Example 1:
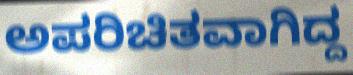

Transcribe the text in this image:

ಅಪರಿಚಿತವಾಗಿದ್ದ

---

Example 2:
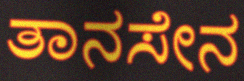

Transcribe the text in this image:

ತಾನಸೇನ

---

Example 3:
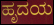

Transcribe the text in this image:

ಹೃದಯ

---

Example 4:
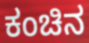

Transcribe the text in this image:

ಕಂಚಿನ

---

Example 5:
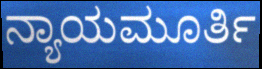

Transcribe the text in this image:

ನ್ಯಾಯಮೂರ್ತಿ